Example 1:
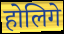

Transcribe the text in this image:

होलिगे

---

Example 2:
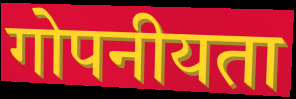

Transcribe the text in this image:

गोपनीयता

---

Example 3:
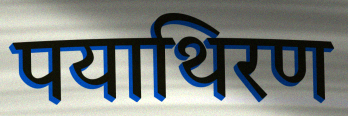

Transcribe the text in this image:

पयाथिरण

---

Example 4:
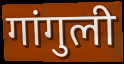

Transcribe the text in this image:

गांगुली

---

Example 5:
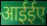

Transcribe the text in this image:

आईईए